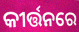
କୀର୍ତ୍ତନରେ